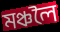
মঞ্চলৈ